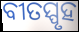
ବୀତସ୍ପୃହ